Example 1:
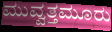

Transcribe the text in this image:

ಮುವ್ವತ್ತಮೂರು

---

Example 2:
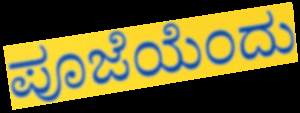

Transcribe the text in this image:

ಪೂಜೆಯೆಂದು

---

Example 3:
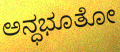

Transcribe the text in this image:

ಅನ್ಧಭೂತೋ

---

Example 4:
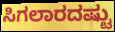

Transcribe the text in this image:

ಸಿಗಲಾರದಷ್ಟು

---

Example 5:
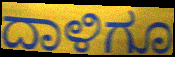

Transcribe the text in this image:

ದಾಳಿಗೂ